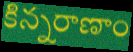
కిన్నరాణాం